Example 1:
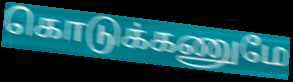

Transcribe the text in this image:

கொடுக்கணுமே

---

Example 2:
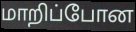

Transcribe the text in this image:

மாறிப்போன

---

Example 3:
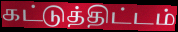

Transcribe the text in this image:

கட்டுத்திட்டம்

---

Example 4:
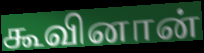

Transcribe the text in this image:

கூவினான்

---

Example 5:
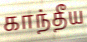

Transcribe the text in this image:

காந்தீய